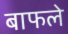
बाफले